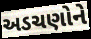
અડચણોને